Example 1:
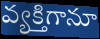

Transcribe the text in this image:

వ్యక్తిగానూ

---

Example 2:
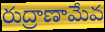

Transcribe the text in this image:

రుద్రాణామేవ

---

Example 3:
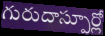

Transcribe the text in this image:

గురుదాస్పూర్లో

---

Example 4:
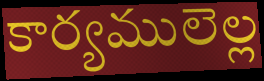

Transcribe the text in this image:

కార్యములెల్ల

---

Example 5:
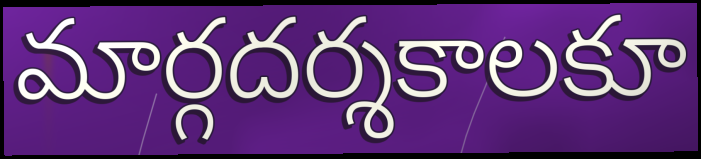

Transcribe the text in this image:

మార్గదర్శకాలకూ